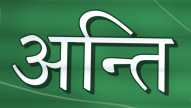
अन्ति